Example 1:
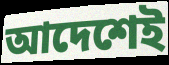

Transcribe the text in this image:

আদেশেই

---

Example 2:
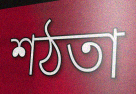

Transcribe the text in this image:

শঠতা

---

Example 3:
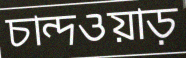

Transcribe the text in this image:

চান্দওয়াড়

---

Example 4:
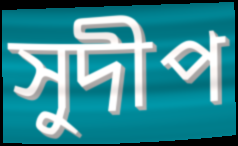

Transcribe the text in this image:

সুদীপ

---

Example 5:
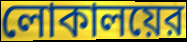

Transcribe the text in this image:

লোকালয়ের